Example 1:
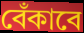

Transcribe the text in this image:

বেঁকাবে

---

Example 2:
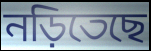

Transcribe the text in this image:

নড়িতেছে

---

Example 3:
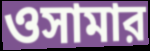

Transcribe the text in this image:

ওসামার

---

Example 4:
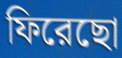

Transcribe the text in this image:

ফিরেছো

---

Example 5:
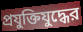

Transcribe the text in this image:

প্রযুক্তিযুদ্ধের